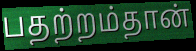
பதற்றம்தான்